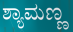
ಶ್ಯಾಮಣ್ಣ